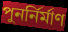
পুনর্নির্মাণ